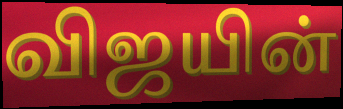
விஜயின்